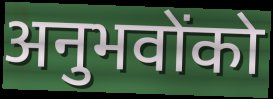
अनुभवोंको